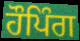
ਹੌਪਿੰਗ